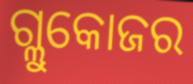
ଗ୍ଲୁକୋଜର